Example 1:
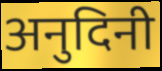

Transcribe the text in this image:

अनुदिनी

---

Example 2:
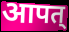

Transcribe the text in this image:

आपत्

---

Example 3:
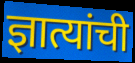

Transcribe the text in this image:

ज्ञात्यांची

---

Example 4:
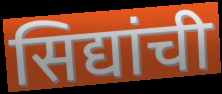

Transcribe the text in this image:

सिद्यांची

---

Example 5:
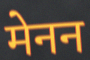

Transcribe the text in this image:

मेनन